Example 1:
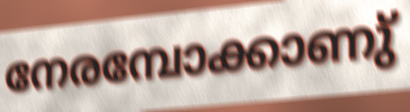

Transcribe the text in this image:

നേരമ്പോക്കാണു്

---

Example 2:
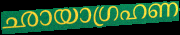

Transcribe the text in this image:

ഛായാഗ്രഹണ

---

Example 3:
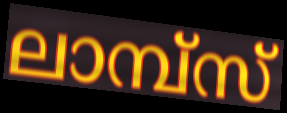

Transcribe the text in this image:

ലാമ്പ്സ്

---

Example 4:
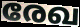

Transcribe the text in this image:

രേഖ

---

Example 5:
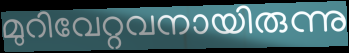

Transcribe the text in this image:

മുറിവേറ്റവനായിരുന്നു